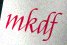
mkdf